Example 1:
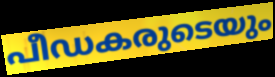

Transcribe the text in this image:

പീഡകരുടെയും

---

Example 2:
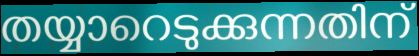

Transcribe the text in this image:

തയ്യാറെടുക്കുന്നതിന്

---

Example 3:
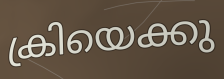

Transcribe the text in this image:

ക്രിയെക്കു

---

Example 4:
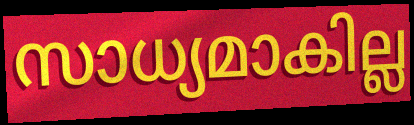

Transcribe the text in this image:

സാധ്യമാകില്ല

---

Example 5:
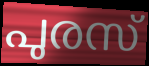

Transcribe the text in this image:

പുരസ്